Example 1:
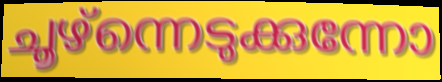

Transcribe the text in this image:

ചൂഴ്ന്നെടുക്കുന്നോ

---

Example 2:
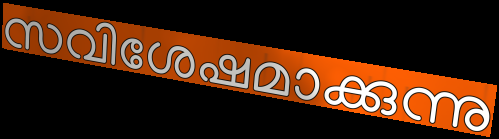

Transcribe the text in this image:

സവിശേഷമാക്കുന്നു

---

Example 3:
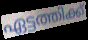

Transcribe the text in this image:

ഏട്ടത്തിക്ക്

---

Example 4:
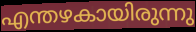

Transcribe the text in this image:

എന്തഴകായിരുന്നു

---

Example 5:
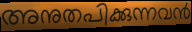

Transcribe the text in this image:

അനുതപിക്കുന്നവൻ